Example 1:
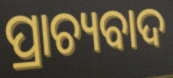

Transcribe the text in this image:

ପ୍ରାଚ୍ୟବାଦ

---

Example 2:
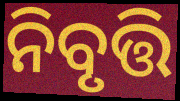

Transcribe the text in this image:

ନିବୃତ୍ତି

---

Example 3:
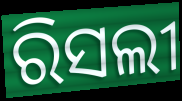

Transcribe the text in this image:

ରିସଲୀ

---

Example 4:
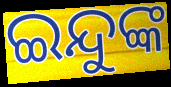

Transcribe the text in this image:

ଇନ୍ଦୁଙ୍କ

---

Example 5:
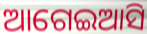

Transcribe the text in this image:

ଆଗେଇଆସି